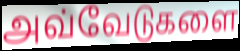
அவ்வேடுகளை